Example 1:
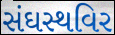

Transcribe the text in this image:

સંઘસ્થવિર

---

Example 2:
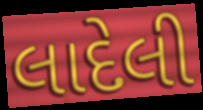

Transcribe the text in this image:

લાદેલી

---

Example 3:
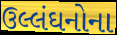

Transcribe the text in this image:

ઉલ્લંઘનોના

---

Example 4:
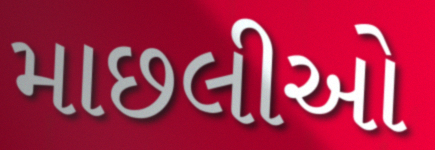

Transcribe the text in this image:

માછલીઓ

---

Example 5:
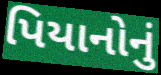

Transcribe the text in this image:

પિયાનોનું